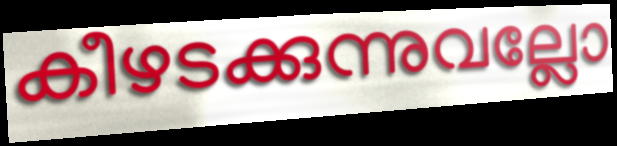
കീഴടക്കുന്നുവല്ലോ